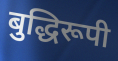
बुद्धिरूपी